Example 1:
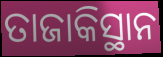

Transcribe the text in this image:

ତାଜାକିସ୍ଥାନ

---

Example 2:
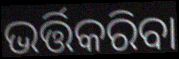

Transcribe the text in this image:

ଭର୍ତ୍ତିକରିବା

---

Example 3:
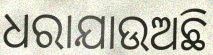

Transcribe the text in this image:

ଧରାଯାଉଅଛି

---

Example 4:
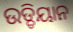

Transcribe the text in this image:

ଉଡ୍ଡିୟାନ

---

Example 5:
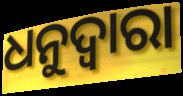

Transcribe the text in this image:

ଧନୁଦ୍ୱାରା